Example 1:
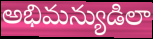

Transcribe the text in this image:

అభిమన్యుడిలా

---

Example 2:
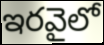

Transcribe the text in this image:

ఇరవైలో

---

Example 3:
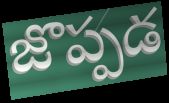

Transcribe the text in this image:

జొప్పడ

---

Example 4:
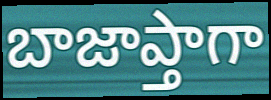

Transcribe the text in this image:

బాజాప్తాగా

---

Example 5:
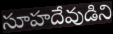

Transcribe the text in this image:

సూహదేవుడిని